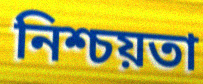
নিশ্চয়তা